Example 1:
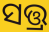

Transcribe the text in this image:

ସତ୍ତ୍ର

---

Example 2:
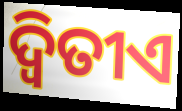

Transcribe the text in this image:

ଦ୍ୱିତୀଏ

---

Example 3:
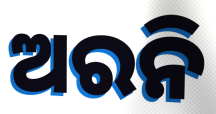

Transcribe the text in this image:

ଅରନି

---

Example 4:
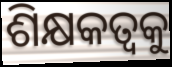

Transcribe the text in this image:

ଶିକ୍ଷକତ୍ଵକୁ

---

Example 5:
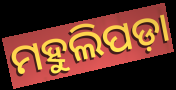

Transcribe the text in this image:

ମହୁଲିପଡ଼ା